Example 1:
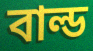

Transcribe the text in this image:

বাল্ড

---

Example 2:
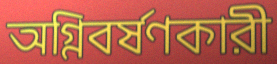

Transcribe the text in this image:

অগ্নিবর্ষণকারী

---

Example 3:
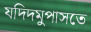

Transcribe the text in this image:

যদিদমুপাসতে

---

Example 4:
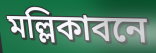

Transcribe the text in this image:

মল্লিকাবনে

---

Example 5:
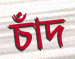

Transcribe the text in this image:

চাঁদ